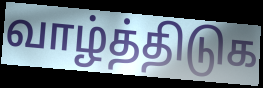
வாழ்த்திடுக